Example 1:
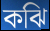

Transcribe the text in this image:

কঝি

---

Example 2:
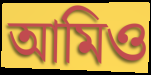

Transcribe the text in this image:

আমিও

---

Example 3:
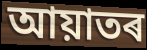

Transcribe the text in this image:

আয়াতৰ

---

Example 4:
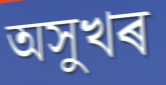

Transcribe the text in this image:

অসুখৰ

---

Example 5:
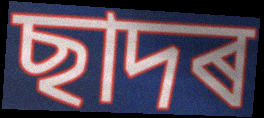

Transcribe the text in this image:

ছাদৰ